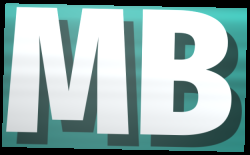
MB